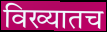
विख्यातच